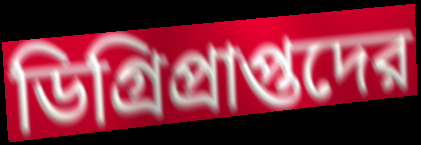
ডিগ্রিপ্রাপ্তদের